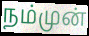
நம்முன்